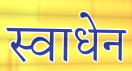
स्वाधेन